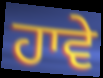
ਹਾਵੇ